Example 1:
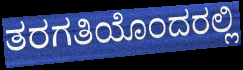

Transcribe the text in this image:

ತರಗತಿಯೊಂದರಲ್ಲಿ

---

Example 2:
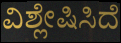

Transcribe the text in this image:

ವಿಶ್ಲೇಷಿಸಿದೆ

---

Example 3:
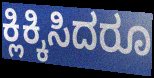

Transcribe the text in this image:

ಕ್ಲಿಕ್ಕಿಸಿದರೂ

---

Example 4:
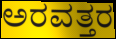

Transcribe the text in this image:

ಅರವತ್ತರ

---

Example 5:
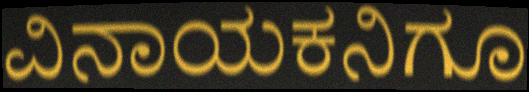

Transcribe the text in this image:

ವಿನಾಯಕನಿಗೂ